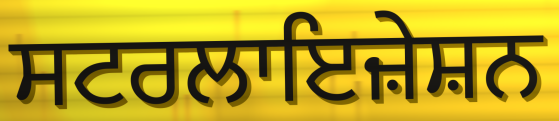
ਸਟਰਲਾਇਜ਼ੇਸ਼ਨ